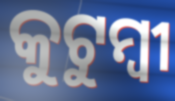
କୁଟୁମ୍ୱୀ